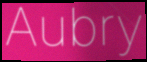
Aubry